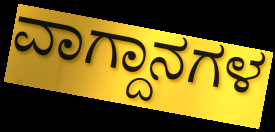
ವಾಗ್ದಾನಗಳ